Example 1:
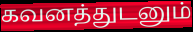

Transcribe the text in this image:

கவனத்துடனும்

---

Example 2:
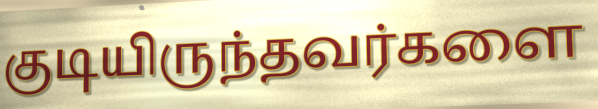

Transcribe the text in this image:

குடியிருந்தவர்களை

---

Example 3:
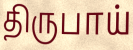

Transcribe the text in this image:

திருபாய்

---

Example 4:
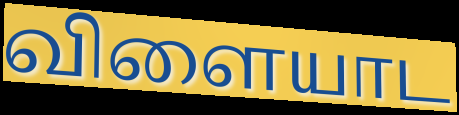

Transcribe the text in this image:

விளையாட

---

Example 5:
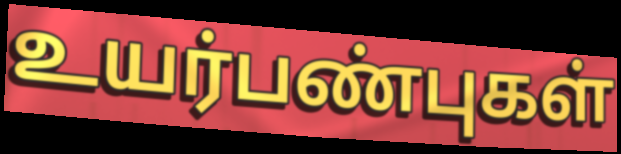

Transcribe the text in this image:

உயர்பண்புகள்